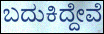
ಬದುಕಿದ್ದೇವೆ